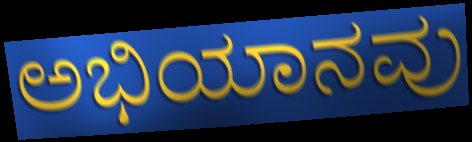
ಅಭಿಯಾನವು